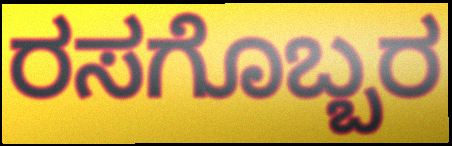
ರಸಗೊಬ್ಬರ